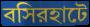
বসিরহাটে